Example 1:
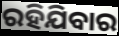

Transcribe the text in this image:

ରହିଯିବାର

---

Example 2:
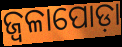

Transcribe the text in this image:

ଜ୍ୱଳାପୋଡ଼ା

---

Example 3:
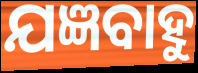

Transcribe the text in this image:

ଯଜ୍ଞବାହୁ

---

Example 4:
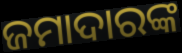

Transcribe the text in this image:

ଜମାଦାରଙ୍କ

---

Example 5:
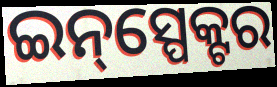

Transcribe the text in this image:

ଇନ୍‌ସ୍ପେକ୍ଟର